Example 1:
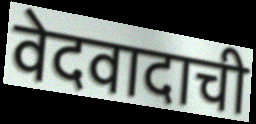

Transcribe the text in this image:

वेदवादाची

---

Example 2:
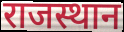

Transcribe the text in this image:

राजस्थान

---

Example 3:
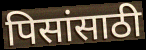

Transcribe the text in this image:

पिसांसाठी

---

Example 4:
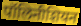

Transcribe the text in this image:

पॉलिनीशियन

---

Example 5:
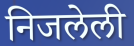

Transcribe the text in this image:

निजलेली